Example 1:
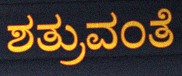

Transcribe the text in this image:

ಶತ್ರುವಂತೆ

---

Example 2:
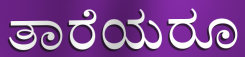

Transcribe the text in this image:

ತಾರೆಯರೂ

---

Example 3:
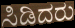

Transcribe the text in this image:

ಸಿಡಿದರು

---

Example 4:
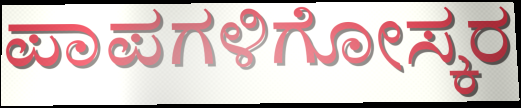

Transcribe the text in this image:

ಪಾಪಗಳಿಗೋಸ್ಕರ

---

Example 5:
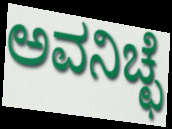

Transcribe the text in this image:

ಅವನಿಚ್ಛೆ